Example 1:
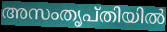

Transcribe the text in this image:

അസംതൃപ്തിയിൽ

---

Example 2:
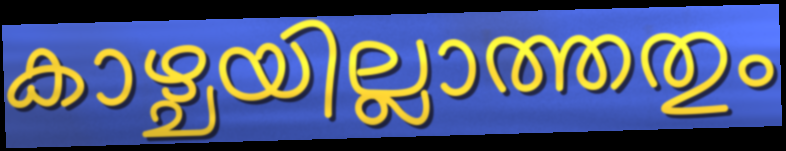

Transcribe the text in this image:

കാഴ്ചയില്ലാത്തതും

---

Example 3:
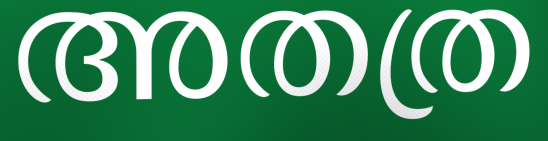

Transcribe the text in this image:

അതത്ര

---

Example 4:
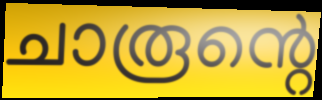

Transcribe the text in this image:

ചാരൂന്റെ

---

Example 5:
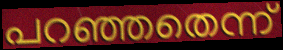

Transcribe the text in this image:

പറഞ്ഞതെന്ന്